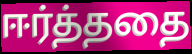
ஈர்த்ததை